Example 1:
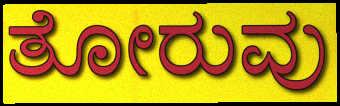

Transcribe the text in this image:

ತೋರುವು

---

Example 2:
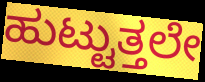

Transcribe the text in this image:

ಹುಟ್ಟುತ್ತಲೇ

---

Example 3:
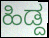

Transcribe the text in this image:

ಹಿಡ್ದ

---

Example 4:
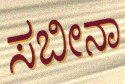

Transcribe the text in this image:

ಸಬೀನಾ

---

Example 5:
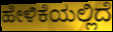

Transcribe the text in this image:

ಹೇಳಿಕೆಯಲ್ಲಿದೆ